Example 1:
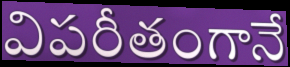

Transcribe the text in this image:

విపరీతంగానే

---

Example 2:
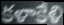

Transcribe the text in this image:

కళాకేళి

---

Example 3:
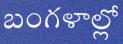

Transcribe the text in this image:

బంగళాల్లో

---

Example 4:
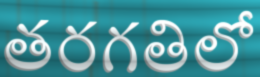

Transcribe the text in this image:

తరగతిలో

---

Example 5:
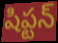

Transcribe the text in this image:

షిప్టన్